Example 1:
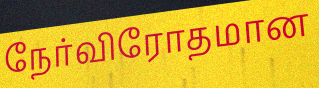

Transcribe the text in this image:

நேர்விரோதமான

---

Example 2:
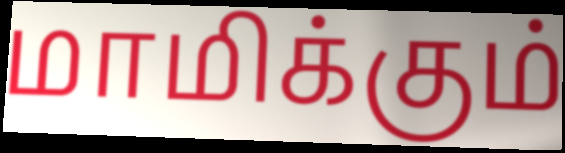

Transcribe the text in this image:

மாமிக்கும்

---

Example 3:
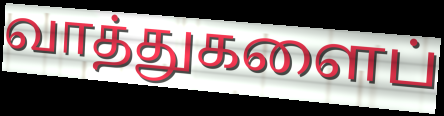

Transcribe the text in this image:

வாத்துகளைப்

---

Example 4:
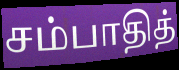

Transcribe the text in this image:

சம்பாதித்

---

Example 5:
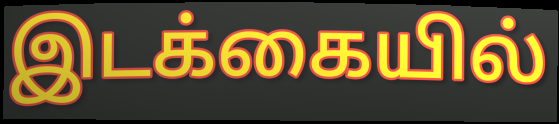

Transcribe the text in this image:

இடக்கையில்